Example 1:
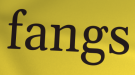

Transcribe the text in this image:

fangs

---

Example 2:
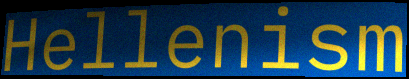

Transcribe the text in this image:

Hellenism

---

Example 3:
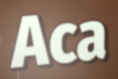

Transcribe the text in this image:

Aca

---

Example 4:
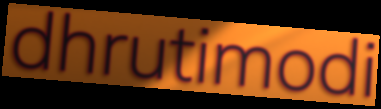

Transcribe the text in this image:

dhrutimodi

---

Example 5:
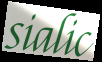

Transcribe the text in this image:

sialic